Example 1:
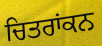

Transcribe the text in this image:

ਚਿਤਰਾਂਕਨ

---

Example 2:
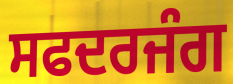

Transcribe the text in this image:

ਸਫਦਰਜੰਗ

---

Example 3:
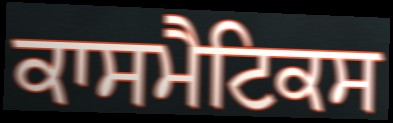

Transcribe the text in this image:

ਕਾਸਮੈਟਿਕਸ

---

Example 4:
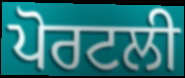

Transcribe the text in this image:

ਪੋਰਟਲੀ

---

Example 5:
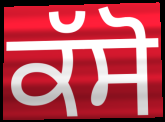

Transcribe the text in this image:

ਕੱਸੋ